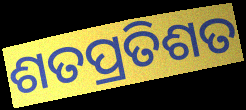
ଶତପ୍ରତିଶତ